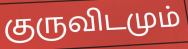
குருவிடமும்